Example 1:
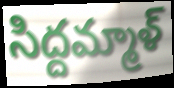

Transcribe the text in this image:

సిద్దమ్మాళ్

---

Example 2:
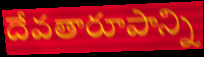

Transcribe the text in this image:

దేవతారూపాన్ని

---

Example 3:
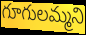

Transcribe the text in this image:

గూగులమ్మని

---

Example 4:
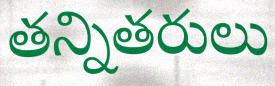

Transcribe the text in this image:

తన్నితరులు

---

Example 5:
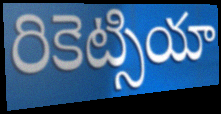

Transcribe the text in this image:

రికెట్సియా